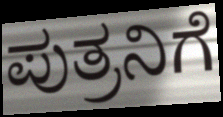
ಪುತ್ರನಿಗೆ